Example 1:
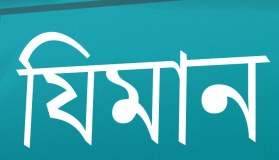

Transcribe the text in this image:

যিমান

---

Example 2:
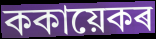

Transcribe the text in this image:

ককায়েকৰ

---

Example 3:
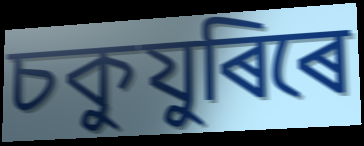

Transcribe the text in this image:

চকুযুৰিৰে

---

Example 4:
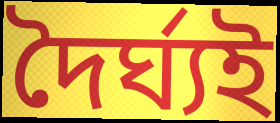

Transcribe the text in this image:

দৈৰ্ঘ্যই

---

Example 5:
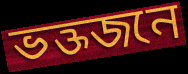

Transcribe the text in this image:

ভক্তজনে